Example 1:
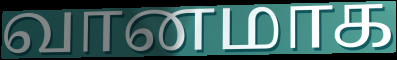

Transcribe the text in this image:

வானமாக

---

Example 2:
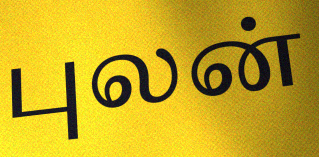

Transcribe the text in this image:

புலன்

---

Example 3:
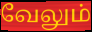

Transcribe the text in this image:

வேலும்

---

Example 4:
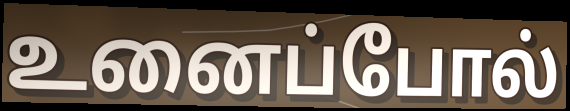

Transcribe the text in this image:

உனைப்போல்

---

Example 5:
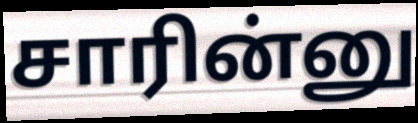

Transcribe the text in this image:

சாரின்னு